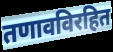
तणावविरहित